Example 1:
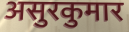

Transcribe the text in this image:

असुरकुमार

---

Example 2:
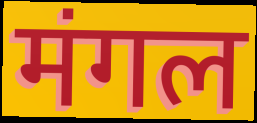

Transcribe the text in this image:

मंगल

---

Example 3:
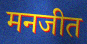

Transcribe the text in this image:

मनजीत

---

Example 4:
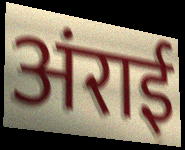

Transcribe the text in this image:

अंराई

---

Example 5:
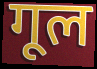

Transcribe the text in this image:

गूल